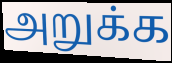
அறுக்க